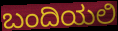
ಬಂದಿಯಲಿ